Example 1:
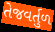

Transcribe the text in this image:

તેજવર્તુળ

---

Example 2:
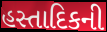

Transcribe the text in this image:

હસ્તાદિકની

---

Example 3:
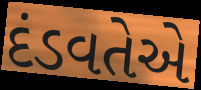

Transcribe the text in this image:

દંડવતેએ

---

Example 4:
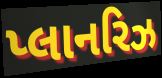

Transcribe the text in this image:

પ્લાનરિઝ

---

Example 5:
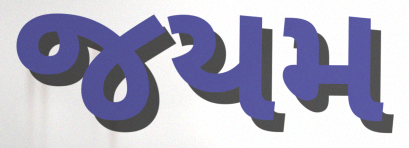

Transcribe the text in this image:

જયમ